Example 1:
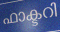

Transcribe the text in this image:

ഫാക്ടറി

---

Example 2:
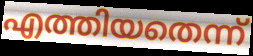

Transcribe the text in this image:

എത്തിയതെന്ന്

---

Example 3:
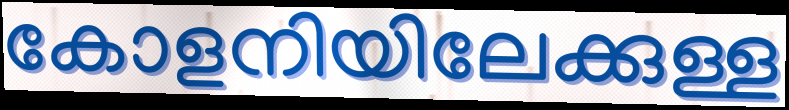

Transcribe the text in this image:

കോളനിയിലേക്കുള്ള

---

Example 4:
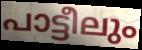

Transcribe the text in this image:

പാട്ടീലും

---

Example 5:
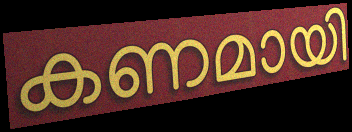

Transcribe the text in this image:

കണമായി